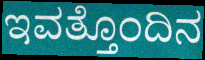
ಇವತ್ತೊಂದಿನ